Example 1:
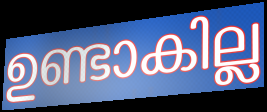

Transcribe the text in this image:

ഉണ്ടാകില്ല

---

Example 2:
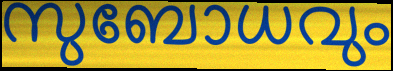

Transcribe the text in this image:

സുബോധവും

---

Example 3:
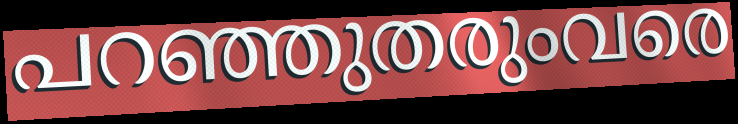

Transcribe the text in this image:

പറഞ്ഞുതരുംവരെ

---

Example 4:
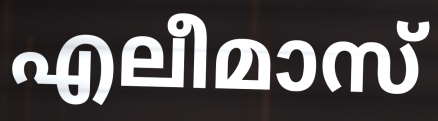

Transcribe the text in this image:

എലീമാസ്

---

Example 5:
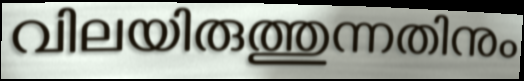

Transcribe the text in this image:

വിലയിരുത്തുന്നതിനും